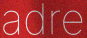
adre